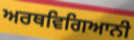
ਅਰਥਵਿਗਿਆਨੀ